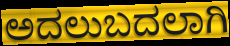
ಅದಲುಬದಲಾಗಿ